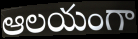
ఆలయంగా